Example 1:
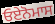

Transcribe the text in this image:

ਓਏਨੋਮਾਸ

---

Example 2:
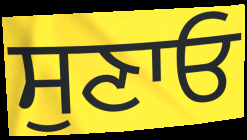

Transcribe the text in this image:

ਸੁਣਾਓ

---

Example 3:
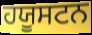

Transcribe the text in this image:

ਹਯੂਸਟਨ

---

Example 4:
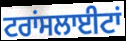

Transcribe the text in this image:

ਟਰਾਂਸਲਾਈਟਾਂ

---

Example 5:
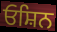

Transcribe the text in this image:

ਓਸ਼ਿਨ